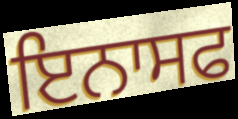
ਇਨਾਸਫ